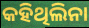
କହିଥିଲିନା